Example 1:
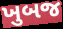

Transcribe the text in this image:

ખુબજ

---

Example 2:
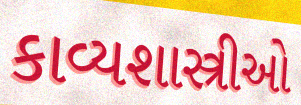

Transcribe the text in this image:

કાવ્યશાસ્ત્રીઓ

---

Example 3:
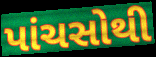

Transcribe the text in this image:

પાંચસોથી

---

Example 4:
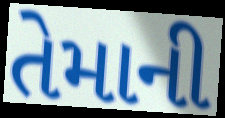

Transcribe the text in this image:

તેમાની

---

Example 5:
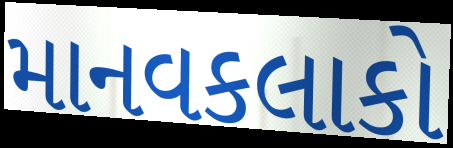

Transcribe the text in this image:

માનવકલાકો